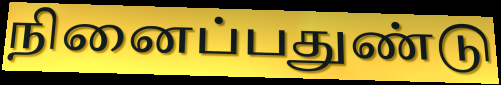
நினைப்பதுண்டு